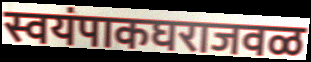
स्वयंपाकघराजवळ